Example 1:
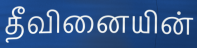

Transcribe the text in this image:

தீவினையின்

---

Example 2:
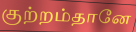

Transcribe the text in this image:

குற்றம்தானே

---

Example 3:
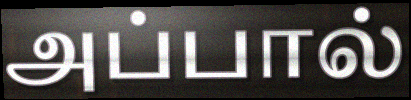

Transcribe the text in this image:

அப்பால்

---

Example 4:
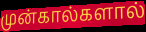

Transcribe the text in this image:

முன்கால்களால்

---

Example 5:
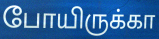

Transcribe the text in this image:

போயிருக்கா